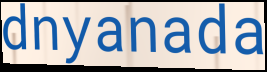
dnyanada